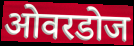
ओवरडोज